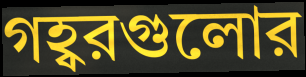
গহ্বরগুলোর